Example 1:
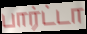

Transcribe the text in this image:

பார்ட்டா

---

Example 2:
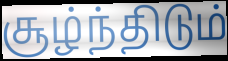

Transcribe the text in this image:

சூழ்ந்திடும்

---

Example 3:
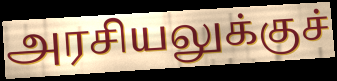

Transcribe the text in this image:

அரசியலுக்குச்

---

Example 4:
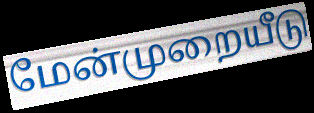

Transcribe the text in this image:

மேன்முறையீடு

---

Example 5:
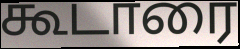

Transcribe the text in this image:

கூடாரை